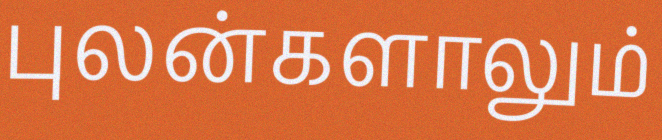
புலன்களாலும்